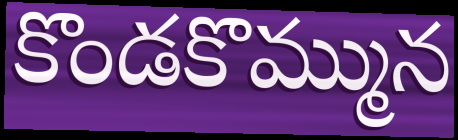
కొండకొమ్మున